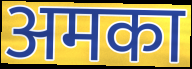
अमका